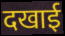
दखाई